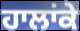
ਹਾਲਾਂਕੇ